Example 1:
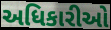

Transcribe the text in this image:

અધિકારીઓ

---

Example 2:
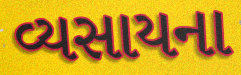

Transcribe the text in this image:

વ્યસાયના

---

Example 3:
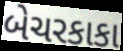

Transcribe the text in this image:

બેચરકાકા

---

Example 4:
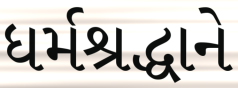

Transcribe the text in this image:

ધર્મશ્રદ્ધાને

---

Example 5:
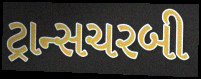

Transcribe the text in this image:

ટ્રાન્સચરબી